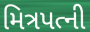
મિત્રપત્ની